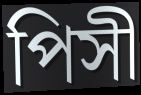
পিসী